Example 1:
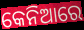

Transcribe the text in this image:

କେନିଆରେ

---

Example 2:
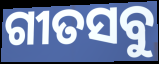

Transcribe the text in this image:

ଗୀତସବୁ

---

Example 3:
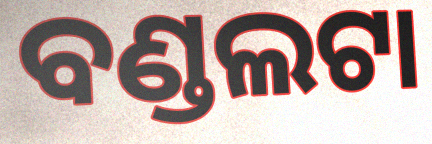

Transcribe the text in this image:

ବଣ୍ଡଲଟା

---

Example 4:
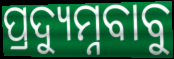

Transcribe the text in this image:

ପ୍ରଦ୍ୟୁମ୍ନବାବୁ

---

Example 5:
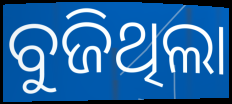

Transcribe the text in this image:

ବୁଜିଥିଲା